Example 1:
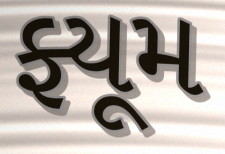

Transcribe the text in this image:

ફ્યૂમ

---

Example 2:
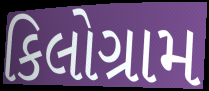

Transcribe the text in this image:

કિલોગ્રામ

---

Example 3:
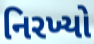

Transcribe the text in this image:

નિરખ્યો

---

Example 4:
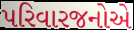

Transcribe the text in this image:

પરિવારજનોએ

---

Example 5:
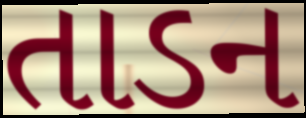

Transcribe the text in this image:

તાડન